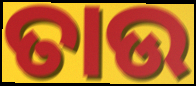
ତାଉ